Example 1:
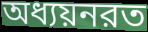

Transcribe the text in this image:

অধ্যয়নরত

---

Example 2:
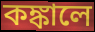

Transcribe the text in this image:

কঙ্কালে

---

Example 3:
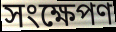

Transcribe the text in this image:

সংক্ষেপণ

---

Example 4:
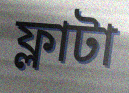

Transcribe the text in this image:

ফ্লাটা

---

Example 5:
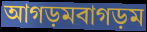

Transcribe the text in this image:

আগড়মবাগড়ম